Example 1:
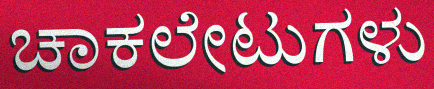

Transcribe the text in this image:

ಚಾಕಲೇಟುಗಳು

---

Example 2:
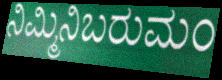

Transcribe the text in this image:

ನಿಮ್ಮಿನಿಬರುಮಂ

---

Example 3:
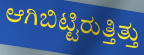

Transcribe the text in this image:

ಆಗಿಬಿಟ್ಟಿರುತ್ತಿತ್ತು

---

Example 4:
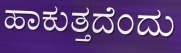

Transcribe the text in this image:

ಹಾಕುತ್ತದೆಂದು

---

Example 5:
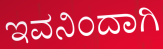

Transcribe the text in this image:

ಇವನಿಂದಾಗಿ